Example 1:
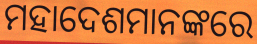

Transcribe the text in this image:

ମହାଦେଶମାନଙ୍କରେ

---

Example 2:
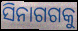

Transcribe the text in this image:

ସିନାଗଗକୁ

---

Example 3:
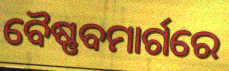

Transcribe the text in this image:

ବୈଷ୍ଣବମାର୍ଗରେ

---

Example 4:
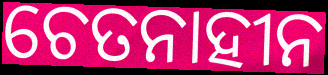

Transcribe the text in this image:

ଚେତନାହୀନ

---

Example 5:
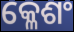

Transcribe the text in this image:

କ୍ଳେଶଂ